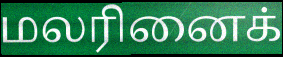
மலரினைக்